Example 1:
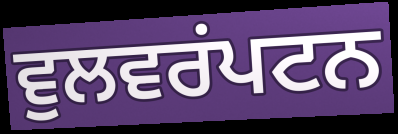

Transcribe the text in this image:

ਵੁਲਵਰਂਪਟਨ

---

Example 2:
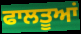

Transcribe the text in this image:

ਫਾਲਤੂਆਂ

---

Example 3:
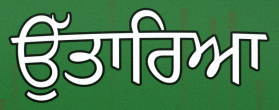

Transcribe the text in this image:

ਉੱਤਾਰਿਆ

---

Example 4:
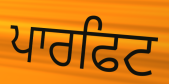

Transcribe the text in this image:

ਪਾਰਫਿਟ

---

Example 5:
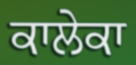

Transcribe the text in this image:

ਕਾਲੇਕਾ